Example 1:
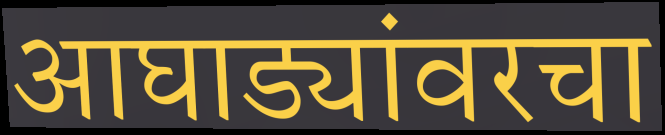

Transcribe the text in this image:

आघाड्यांवरचा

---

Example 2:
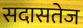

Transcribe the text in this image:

सदासतेज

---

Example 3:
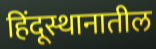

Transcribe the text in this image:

हिंदूस्थानातील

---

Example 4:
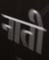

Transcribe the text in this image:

नाती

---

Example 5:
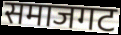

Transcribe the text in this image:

समाजगट